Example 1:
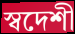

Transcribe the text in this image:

স্বদেশী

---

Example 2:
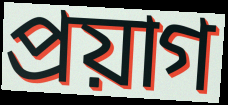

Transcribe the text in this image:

প্ৰয়াগ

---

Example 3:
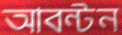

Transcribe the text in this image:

আবন্টন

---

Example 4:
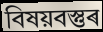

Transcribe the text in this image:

বিষয়বস্তুৰ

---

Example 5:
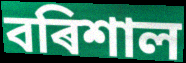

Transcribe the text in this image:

বৰিশাল